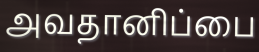
அவதானிப்பை